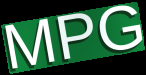
MPG